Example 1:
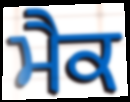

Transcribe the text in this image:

ਮੈਕ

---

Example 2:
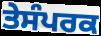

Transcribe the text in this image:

ਤੇਸੰਪਰਕ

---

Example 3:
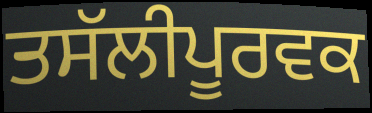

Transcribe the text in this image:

ਤਸੱਲੀਪੂਰਵਕ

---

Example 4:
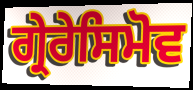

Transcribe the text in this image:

ਗ੍ਰੇਰੇਸਿਮੋਵ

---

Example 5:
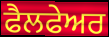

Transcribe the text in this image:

ਫੈਲਫੇਅਰ